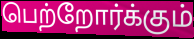
பெற்றோர்க்கும்